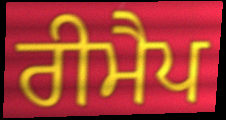
ਰੀਮੈਪ